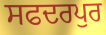
ਸਫਦਰਪੁਰ